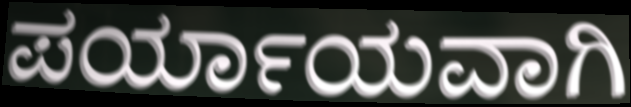
ಪರ್ಯಾಯವಾಗಿ